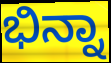
ಭಿನ್ನಾ